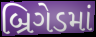
બ્રિગેડમાં